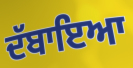
ਦੱਬਾਇਆ